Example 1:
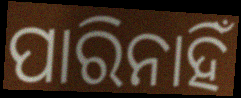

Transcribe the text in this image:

ପାରିନାହିଁ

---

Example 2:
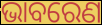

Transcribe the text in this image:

ଭାବରେଣ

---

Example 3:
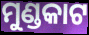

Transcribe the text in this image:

ମୁଣ୍ଡକାଟ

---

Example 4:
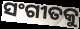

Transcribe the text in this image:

ସଂଗୀତକୁ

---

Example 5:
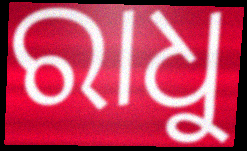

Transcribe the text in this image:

ରାଧୁ